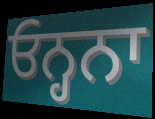
ਓਨ੍ਹਨਾ